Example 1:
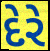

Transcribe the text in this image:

દેરે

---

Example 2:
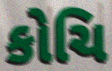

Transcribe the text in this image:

કોચિ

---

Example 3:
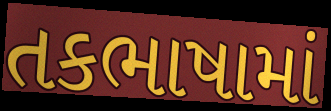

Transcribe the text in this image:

તકભાષામાં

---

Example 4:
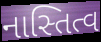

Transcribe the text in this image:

નાસ્તિત્વ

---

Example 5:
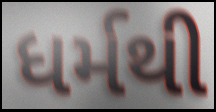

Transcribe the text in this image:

ધર્મથી